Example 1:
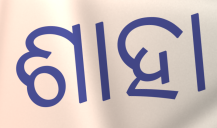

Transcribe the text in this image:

ଶାହା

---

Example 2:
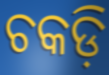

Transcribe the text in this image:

ଚକଡ଼ି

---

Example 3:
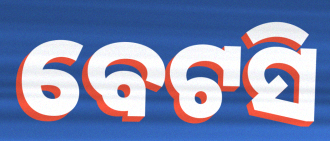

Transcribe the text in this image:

ବେଟସି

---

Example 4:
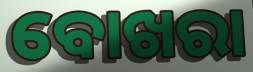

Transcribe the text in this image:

ବୋଖରା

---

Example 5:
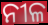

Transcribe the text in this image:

ନୀଳ